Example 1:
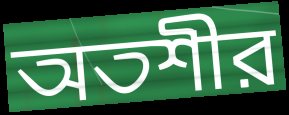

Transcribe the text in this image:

অতশীর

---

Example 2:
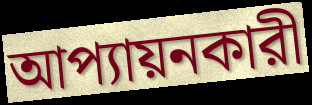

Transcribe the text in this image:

আপ্যায়নকারী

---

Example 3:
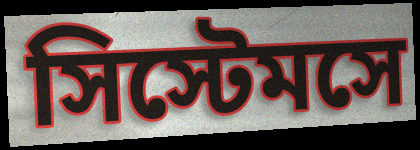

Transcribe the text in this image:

সিস্টেমসে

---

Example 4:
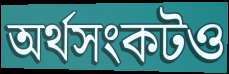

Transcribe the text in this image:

অর্থসংকটও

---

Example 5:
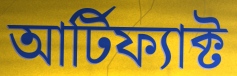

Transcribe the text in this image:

আর্টিফ্যাক্ট